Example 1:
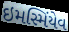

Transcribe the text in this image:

ઇમસ્મિંયેવ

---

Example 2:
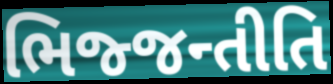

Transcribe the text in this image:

ભિજ્જન્તીતિ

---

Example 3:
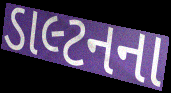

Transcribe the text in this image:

ડાલ્ટનના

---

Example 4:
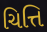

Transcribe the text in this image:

ચિત્તિ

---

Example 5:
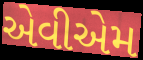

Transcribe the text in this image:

એવીએમ